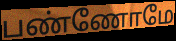
பண்ணோமே